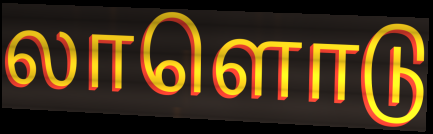
லாளொடு